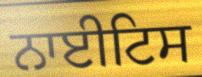
ਨਾਈਟਿਸ